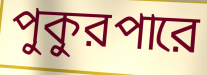
পুকুরপারে